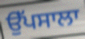
ਉੱਪਸਾਲਾ